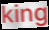
king